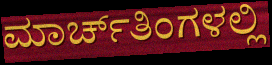
ಮಾರ್ಚ್‌ತಿಂಗಳಲ್ಲಿ